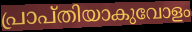
പ്രാപ്തിയാകുവോളം